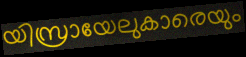
യിസ്രായേലുകാരെയും